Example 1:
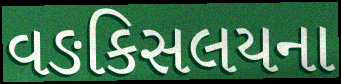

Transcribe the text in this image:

વઙકિસલયના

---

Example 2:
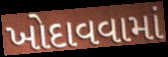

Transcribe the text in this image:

ખોદાવવામાં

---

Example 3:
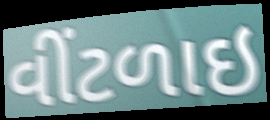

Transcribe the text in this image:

વીંટળાઇ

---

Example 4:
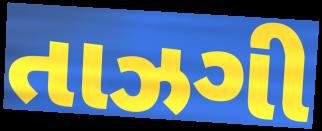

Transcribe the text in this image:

તાઝગી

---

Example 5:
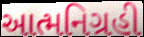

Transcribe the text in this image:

આત્મનિગ્રહી